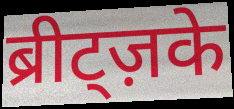
ब्रीट्ज़के